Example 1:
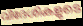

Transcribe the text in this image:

വിദേശികളുടെ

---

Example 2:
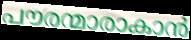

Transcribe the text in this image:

പൗരന്മാരാകാൻ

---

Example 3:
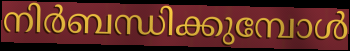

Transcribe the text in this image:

നിർബന്ധിക്കുമ്പോൾ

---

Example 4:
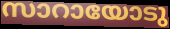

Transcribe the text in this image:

സാറായോടു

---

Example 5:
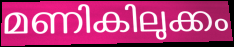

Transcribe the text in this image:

മണികിലുക്കം